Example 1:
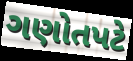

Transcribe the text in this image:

ગણોતપટે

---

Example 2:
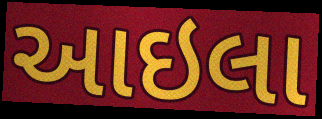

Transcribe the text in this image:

આઇલા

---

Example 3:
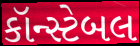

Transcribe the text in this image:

કૉન્સ્ટેબલ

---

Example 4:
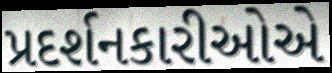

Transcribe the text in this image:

પ્રદર્શનકારીઓએ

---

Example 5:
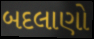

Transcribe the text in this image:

બદલાણો